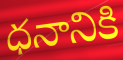
ధనానికి